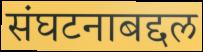
संघटनाबद्दल